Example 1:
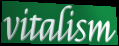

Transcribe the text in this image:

vitalism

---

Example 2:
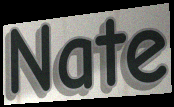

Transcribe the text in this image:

Nate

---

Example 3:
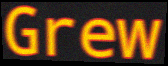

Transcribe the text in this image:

Grew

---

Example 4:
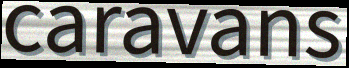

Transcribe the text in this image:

caravans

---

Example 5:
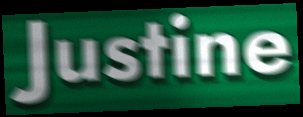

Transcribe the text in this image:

Justine